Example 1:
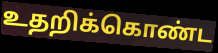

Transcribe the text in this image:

உதறிக்கொண்ட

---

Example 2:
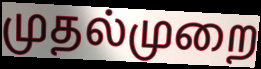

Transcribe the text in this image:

முதல்முறை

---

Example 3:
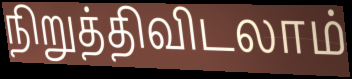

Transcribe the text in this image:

நிறுத்திவிடலாம்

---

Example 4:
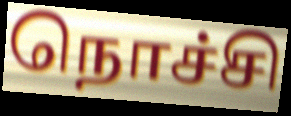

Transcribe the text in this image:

நொச்சி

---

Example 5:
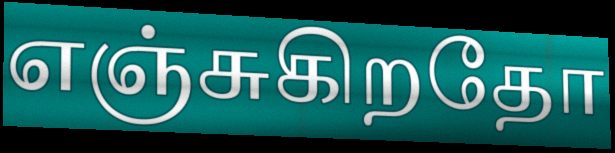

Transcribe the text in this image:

எஞ்சுகிறதோ